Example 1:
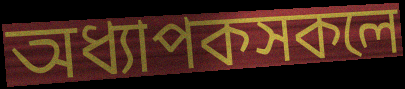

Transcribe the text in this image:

অধ্যাপকসকলে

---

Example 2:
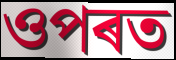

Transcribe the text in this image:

ওপৰত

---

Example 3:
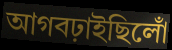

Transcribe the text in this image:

আগবঢ়াইছিলোঁ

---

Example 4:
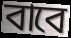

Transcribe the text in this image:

বাবে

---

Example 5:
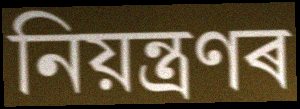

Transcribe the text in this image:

নিয়ন্ত্ৰণৰ